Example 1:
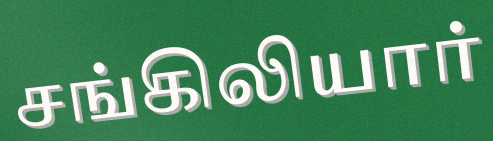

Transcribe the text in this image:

சங்கிலியார்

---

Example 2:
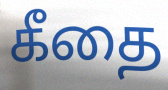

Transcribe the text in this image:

கீதை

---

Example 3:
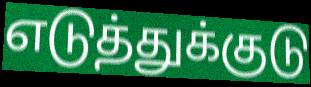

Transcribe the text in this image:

எடுத்துக்குடு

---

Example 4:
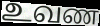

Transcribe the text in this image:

உவண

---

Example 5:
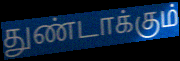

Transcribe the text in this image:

துண்டாக்கும்